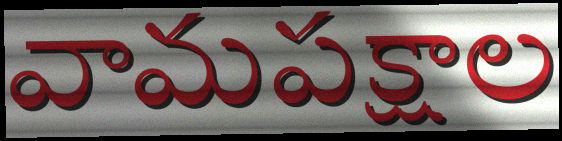
వామపక్షాల